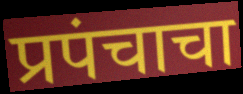
प्रपंचाचा